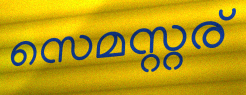
സെമസ്റ്റര്